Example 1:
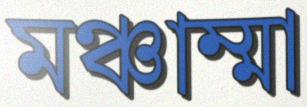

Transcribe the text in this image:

মঞ্চাম্মা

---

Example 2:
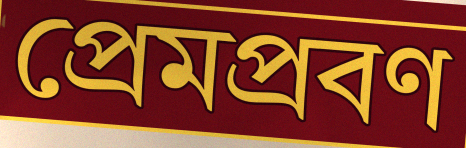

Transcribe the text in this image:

প্রেমপ্রবণ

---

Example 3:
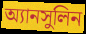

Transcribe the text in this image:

অ্যানসুলিন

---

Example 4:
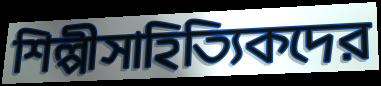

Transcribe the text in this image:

শিল্পীসাহিত্যিকদের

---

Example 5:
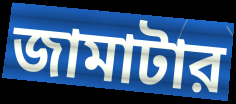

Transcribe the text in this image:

জামাটার